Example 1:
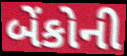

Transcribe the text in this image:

બેંકોની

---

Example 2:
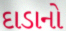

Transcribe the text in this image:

દાડાનો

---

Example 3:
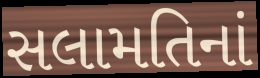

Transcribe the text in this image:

સલામતિનાં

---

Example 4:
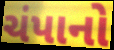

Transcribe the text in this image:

ચંપાનો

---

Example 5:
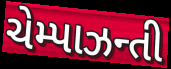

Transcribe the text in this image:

ચેમ્પાઝન્તી